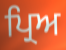
ਪ੍ਰਿਅ